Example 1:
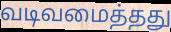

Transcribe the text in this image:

வடிவமைத்தது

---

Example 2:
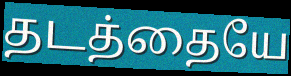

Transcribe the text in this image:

தடத்தையே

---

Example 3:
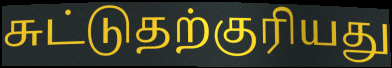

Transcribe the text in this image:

சுட்டுதற்குரியது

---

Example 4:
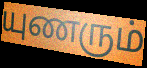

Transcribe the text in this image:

யுணரும்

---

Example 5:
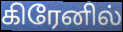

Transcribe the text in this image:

கிரேனில்